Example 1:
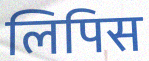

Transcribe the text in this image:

लिपिस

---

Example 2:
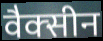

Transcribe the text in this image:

वैक्‍सीन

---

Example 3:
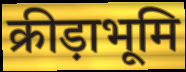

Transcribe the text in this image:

क्रीड़ाभूमि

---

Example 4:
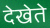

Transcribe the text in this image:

देखेते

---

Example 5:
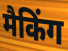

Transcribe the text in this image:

मैकिंग